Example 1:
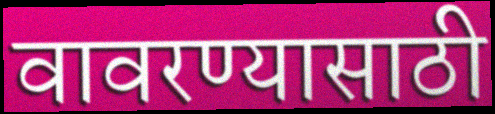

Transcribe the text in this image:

वावरण्यासाठी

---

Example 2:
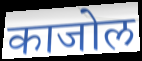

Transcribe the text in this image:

काजोल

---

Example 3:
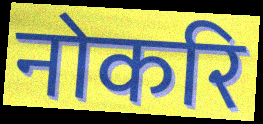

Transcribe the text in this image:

नोकरि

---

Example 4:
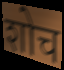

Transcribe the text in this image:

शोच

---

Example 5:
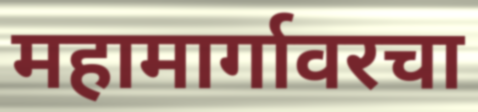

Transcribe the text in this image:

महामार्गावरचा